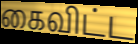
கைவிட்ட